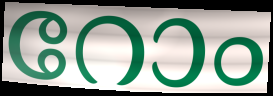
റോം